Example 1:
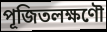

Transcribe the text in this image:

পূজিতলক্ষণৌ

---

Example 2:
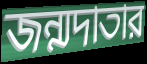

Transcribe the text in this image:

জন্মদাতার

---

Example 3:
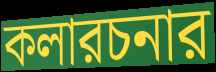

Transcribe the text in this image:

কলারচনার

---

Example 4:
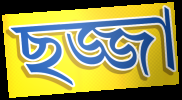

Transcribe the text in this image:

ছজ্জা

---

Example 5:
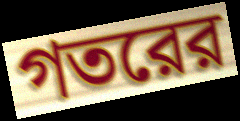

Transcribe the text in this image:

গতরের